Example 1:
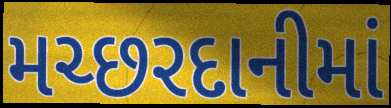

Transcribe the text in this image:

મચ્છરદાનીમાં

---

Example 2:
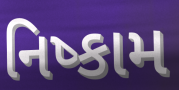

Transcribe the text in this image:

નિષ્કામ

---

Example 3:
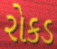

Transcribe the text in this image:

રોકડ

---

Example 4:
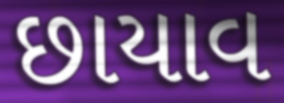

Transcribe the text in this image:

છાયાવ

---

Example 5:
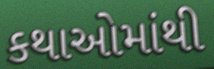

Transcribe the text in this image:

કથાઓમાંથી